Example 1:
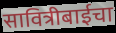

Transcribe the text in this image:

सावित्रीबाईचा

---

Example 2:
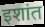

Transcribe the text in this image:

इशांत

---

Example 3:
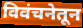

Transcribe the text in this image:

विवंचनेतून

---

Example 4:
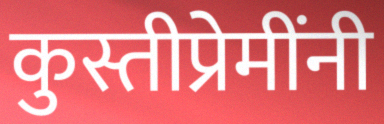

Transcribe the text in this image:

कुस्तीप्रेमींनी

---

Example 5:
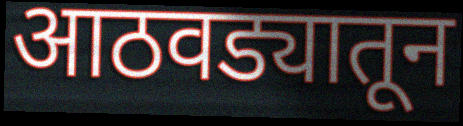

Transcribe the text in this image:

आठवड्यातून